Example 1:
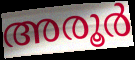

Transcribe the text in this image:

അരൂർ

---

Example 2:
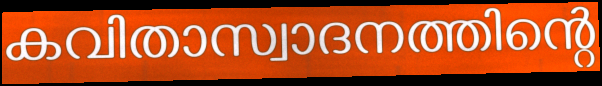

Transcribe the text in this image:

കവിതാസ്വാദനത്തിന്റെ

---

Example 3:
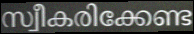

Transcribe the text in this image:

സ്വീകരിക്കേണ്ട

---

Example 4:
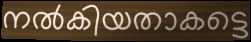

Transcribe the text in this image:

നൽകിയതാകട്ടെ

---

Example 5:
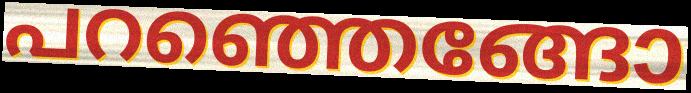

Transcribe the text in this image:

പറഞ്ഞെങ്ങോ